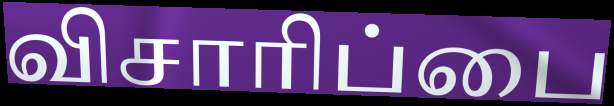
விசாரிப்பை